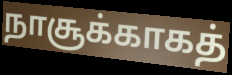
நாசூக்காகத்